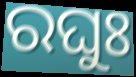
ରଘୁଃ